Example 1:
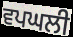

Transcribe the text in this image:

ਵਪਘਲੀ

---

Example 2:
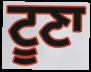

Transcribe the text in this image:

ਟੂਣਾ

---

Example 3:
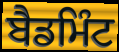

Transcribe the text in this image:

ਬੈਡਮਿੰਟ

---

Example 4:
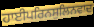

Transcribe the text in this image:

ਹਾਈਪਰਿਨਸੁਲਿਨਵਾਦ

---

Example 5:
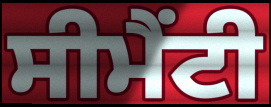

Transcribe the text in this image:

ਸੀਮੈਂਟੀ